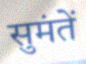
सुमंतें